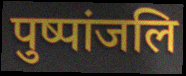
पुष्‍पांजलि